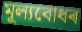
মূল্যবোধৰ